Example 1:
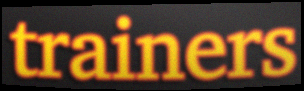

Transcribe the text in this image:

trainers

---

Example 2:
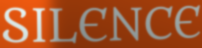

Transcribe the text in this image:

SILENCE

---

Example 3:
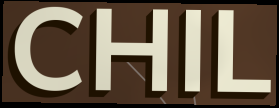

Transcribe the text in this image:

CHIL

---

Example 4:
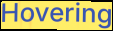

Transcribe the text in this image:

Hovering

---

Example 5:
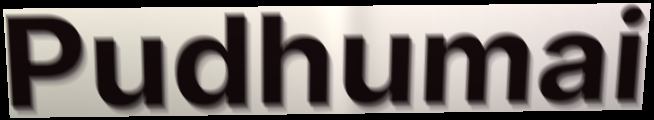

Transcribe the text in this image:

Pudhumai